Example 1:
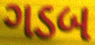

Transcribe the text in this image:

ગડબ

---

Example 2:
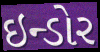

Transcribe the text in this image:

ઇન્ડોર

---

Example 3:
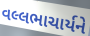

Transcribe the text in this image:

વલ્લભાચાર્યને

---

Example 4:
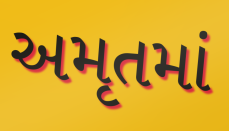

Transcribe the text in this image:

અમૃતમાં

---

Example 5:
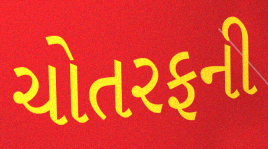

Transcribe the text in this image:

ચોતરફની